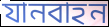
যানবাহন